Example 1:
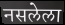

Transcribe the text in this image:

नसलेला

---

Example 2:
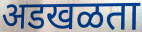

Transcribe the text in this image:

अडखळता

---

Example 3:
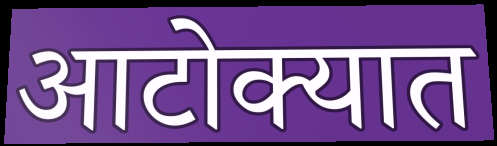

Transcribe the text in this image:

आटोक्यात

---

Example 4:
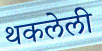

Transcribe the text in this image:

थकलेली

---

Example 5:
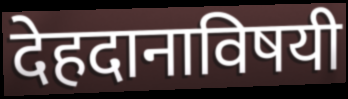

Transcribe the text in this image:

देहदानाविषयी